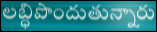
లబ్ధిపొందుతున్నారు